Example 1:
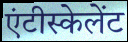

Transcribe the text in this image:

एंटीस्केलेंट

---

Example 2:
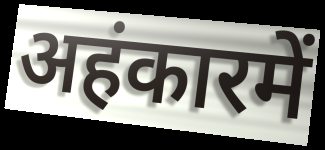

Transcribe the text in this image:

अहंकारमें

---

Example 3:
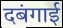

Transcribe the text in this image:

दबंगाई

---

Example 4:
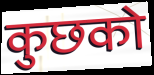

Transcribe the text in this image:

कुछको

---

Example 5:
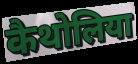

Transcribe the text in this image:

कैथोलिया